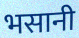
भसानी